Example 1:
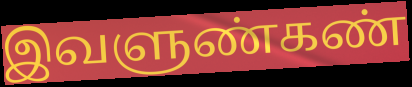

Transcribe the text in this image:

இவளுண்கண்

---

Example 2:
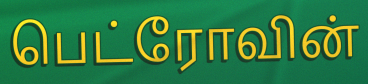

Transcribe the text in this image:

பெட்ரோவின்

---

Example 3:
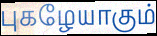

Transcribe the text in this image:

புகழேயாகும்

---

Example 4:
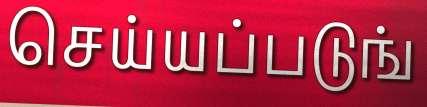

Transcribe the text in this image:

செய்யப்படுங்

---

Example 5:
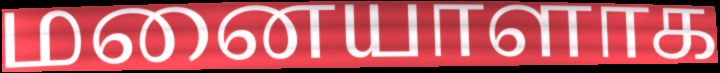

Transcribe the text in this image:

மனையாளாக